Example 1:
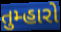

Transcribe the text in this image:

તુમ્હારો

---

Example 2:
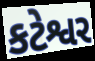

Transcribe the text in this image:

કટેશ્વર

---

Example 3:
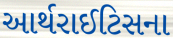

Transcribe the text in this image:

આર્થરાઈટિસના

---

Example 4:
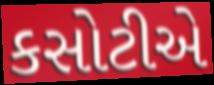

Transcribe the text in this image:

કસોટીએ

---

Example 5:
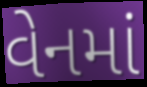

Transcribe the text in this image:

વેનમાં